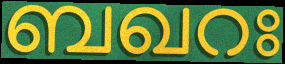
ബഖറഃ